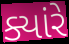
ક્યાંરે